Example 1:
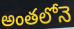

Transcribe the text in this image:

అంతలోనె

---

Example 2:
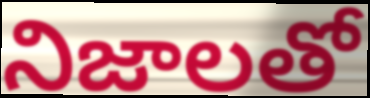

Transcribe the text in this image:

నిజాలతో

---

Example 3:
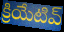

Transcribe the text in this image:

క్రియేటివ్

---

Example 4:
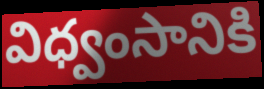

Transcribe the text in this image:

విధ్వంసానికి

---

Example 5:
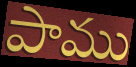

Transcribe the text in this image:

పాము